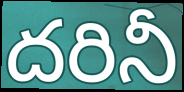
దరినీ